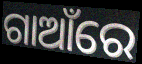
ଗାଆଁରେ